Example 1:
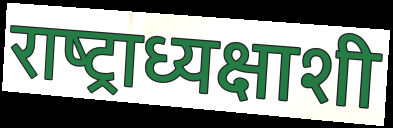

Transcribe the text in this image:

राष्ट्राध्यक्षाशी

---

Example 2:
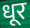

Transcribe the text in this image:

धूर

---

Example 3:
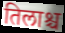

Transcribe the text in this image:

तिलाश्च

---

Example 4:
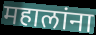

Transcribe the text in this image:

महालांना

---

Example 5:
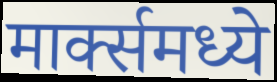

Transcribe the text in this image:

मार्क्समध्ये